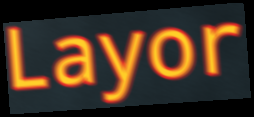
Layor